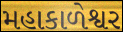
મહાકાળેશ્વર